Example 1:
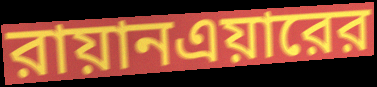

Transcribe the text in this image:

রায়ানএয়ারের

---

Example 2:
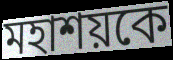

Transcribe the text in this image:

মহাশয়কে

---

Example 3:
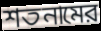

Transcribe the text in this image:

শতনামের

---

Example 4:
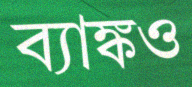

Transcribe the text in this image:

ব্যাঙ্কও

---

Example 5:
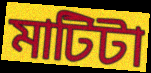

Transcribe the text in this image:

মাটিটা